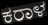
ಕರಾಳ